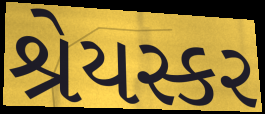
શ્રેયસ્કર